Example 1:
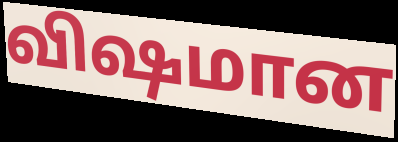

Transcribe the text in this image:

விஷமான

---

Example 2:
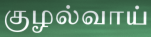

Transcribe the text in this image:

குழல்வாய்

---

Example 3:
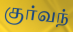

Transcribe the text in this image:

குர்வந்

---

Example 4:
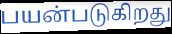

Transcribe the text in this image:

பயன்படுகிறது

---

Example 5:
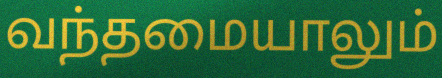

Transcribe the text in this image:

வந்தமையாலும்